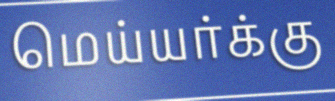
மெய்யர்க்கு